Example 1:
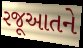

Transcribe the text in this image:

રજૂઆતને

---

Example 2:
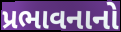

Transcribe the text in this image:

પ્રભાવનાનો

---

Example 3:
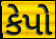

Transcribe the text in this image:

કેપો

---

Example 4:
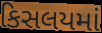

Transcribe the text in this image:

કિસલયમાં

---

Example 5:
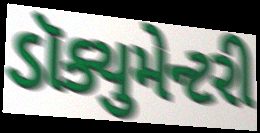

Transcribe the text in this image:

ડૉક્યુમેન્ટરી